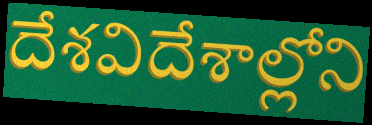
దేశవిదేశాల్లోని